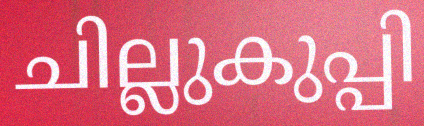
ചില്ലുകുപ്പി